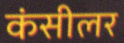
कंसीलर